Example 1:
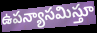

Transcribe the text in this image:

ఉపన్యాసమిస్తూ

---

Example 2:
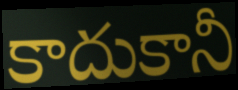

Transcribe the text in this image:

కాదుకానీ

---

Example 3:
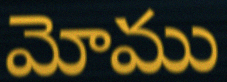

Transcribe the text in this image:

మోము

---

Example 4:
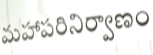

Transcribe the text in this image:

మహాపరినిర్వాణం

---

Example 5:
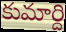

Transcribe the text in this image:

కుమార్ది